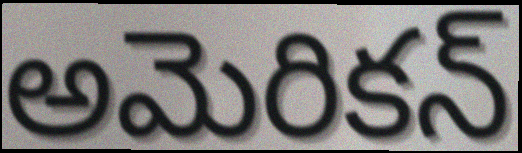
అమెరికన్